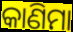
କାଣିମା